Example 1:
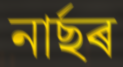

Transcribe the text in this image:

নাৰ্ছৰ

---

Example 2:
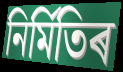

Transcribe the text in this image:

নিৰ্মিতিৰ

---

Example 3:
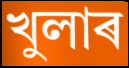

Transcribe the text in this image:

খুলাৰ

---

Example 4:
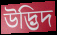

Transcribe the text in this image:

উদ্ভিদ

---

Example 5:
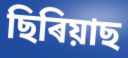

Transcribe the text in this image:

ছিৰিয়াছ